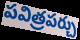
పవిత్రపర్చు